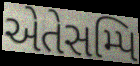
એતેસમ્પિ